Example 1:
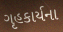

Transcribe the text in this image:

ગૃહકાર્યના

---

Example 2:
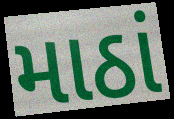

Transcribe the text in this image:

માઠાં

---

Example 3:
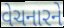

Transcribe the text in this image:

વેચનારને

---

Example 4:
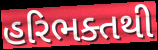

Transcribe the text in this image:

હરિભક્તથી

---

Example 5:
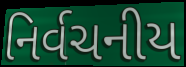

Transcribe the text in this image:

નિર્વચનીય